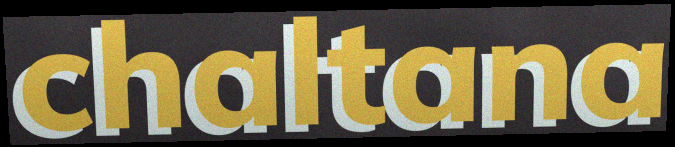
chaltana